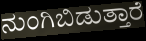
ನುಂಗಿಬಿಡುತ್ತಾರೆ